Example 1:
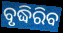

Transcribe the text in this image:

ବୃଦ୍ଧିରିବ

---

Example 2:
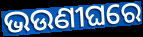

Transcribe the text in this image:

ଭଉଣୀଘରେ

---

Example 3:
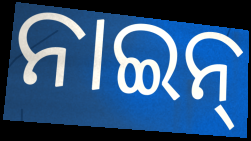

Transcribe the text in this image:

ନାଇନ୍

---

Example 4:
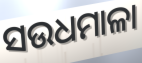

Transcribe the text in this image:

ସଉଧମାଳା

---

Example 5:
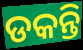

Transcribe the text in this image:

ଡକନ୍ତି